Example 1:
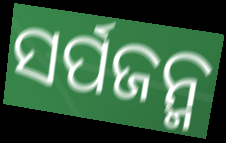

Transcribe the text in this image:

ସର୍ପଜନ୍ମ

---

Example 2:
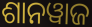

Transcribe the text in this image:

ଶାନୱାଜ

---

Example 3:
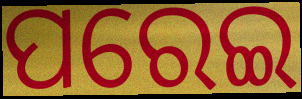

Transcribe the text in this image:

ପରେଇ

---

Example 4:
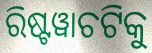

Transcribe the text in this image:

ରିଷ୍ଟୱାଚଟିକୁ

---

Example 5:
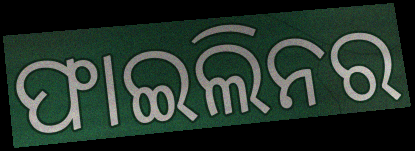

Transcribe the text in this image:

ଫାଇଲିନର